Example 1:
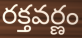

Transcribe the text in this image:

రక్తవర్ణం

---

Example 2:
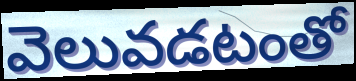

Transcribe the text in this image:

వెలువడటంతో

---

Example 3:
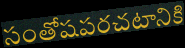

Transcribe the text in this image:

సంతోషపరచటానికి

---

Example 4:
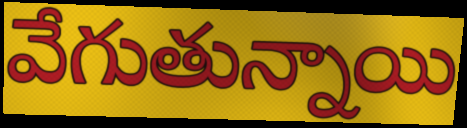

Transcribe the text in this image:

వేగుతున్నాయి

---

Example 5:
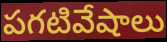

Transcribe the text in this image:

పగటివేషాలు